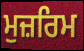
ਮੁਜ਼ਰਿਮ